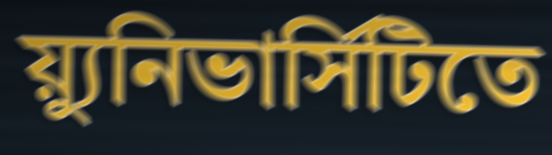
য়্যুনিভার্সিটিতে